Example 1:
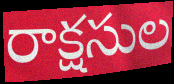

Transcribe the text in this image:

రాక్షసుల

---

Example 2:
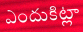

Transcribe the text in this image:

ఎందుకిట్లా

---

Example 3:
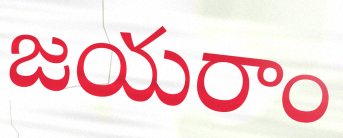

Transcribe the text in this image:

జయరాం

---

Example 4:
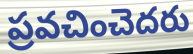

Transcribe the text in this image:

ప్రవచించెదరు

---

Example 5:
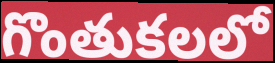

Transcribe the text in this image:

గొంతుకలలో